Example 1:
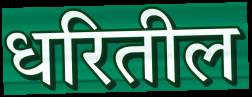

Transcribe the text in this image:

धरितील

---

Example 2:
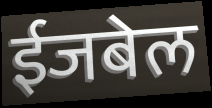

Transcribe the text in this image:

ईजबेल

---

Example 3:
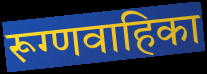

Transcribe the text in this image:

रूग्णवाहिका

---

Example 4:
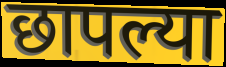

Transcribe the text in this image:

छापल्या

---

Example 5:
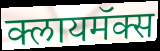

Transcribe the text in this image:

क्लायमॅक्स